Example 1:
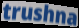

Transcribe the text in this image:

trushna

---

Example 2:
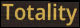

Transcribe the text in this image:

Totality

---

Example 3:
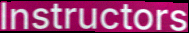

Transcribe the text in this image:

Instructors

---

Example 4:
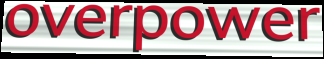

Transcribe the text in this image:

overpower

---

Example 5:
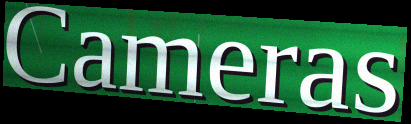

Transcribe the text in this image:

Cameras